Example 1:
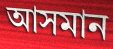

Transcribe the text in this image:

আসমান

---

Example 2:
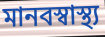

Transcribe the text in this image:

মানবস্বাস্থ্য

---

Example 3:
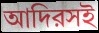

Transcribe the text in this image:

আদিরসই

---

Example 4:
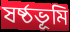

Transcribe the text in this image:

ষষ্ঠভূমি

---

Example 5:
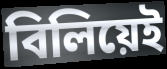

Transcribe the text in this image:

বিলিয়েই